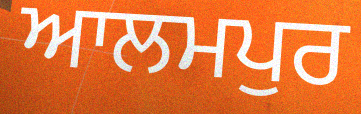
ਆਲਮਪੁਰ